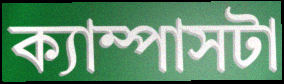
ক্যাম্পাসটা